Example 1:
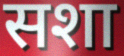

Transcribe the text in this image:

सशा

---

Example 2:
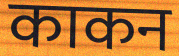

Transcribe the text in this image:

काकन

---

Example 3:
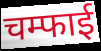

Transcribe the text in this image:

चम्फाई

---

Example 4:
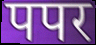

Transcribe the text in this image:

पपर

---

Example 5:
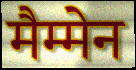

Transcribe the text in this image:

मैम्मेन